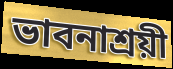
ভাবনাশ্রয়ী